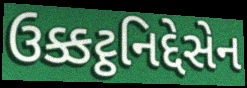
ઉક્કટ્ઠનિદ્દેસેન